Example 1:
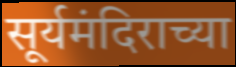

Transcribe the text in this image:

सूर्यमंदिराच्या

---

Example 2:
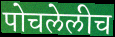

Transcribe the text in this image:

पोचलेलीच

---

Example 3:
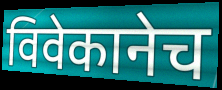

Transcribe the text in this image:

विवेकानेच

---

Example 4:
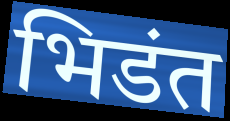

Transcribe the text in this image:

भिडंत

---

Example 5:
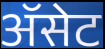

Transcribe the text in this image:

ॲसेट